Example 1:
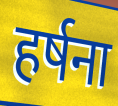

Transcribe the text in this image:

हर्षना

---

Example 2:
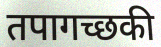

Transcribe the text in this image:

तपागच्छकी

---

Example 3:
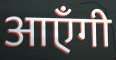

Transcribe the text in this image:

आएँगी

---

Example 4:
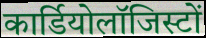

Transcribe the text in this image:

कार्डियोलॉजिस्टों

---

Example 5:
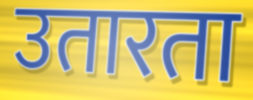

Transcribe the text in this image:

उतारता